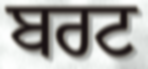
ਬਰਟ